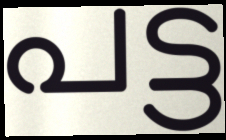
പട്ട